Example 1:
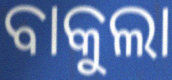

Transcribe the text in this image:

ବାକୁଲା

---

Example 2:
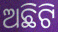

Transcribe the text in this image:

ଅଛିଟି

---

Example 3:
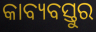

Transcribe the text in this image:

କାବ୍ୟବସ୍ତୁର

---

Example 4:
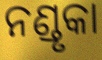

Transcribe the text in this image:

ନଣ୍ଡୃକା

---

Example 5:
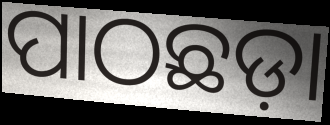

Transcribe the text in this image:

ପାଠଛଡ଼ା